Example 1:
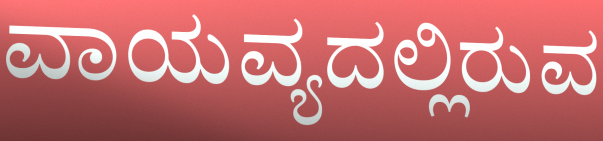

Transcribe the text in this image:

ವಾಯವ್ಯದಲ್ಲಿರುವ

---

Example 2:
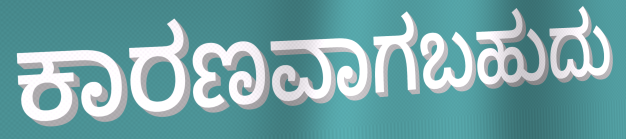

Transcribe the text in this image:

ಕಾರಣವಾಗಬಹುದು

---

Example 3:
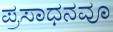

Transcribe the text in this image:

ಪ್ರಸಾಧನವೂ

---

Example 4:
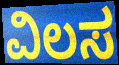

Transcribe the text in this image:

ವಿಲಸ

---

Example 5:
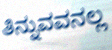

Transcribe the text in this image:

ತಿನ್ನುವವನಲ್ಲ